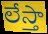
లేస్తా